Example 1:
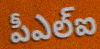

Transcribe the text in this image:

పీఎల్ఐ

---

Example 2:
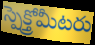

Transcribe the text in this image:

స్పెక్త్రోమీటరు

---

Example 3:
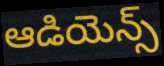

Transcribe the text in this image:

ఆడియెన్స్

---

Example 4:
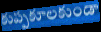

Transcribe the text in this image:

కుప్పకూలకుండా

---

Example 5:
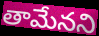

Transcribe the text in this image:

తామేనని